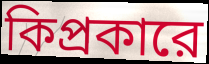
কিপ্রকারে